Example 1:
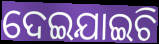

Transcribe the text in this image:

ଦେଇଯାଇଚି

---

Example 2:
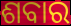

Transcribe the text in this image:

ଶବାର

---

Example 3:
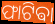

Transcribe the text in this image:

ଫାଟିଵା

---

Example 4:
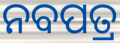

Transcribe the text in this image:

ନବପତ୍ର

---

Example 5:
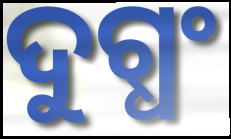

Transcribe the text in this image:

ଦୁଗ୍ଧଂ